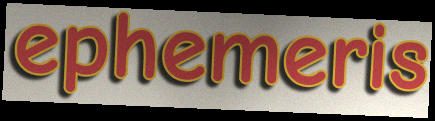
ephemeris